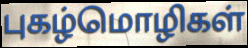
புகழ்மொழிகள்